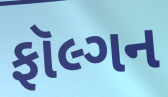
ફૉલ્ગન